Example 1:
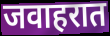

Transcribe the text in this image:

जवाहरात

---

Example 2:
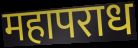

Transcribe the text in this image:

महापराध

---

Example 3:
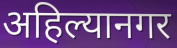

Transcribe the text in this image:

अहिल्यानगर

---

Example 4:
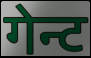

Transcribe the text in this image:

गेन्ट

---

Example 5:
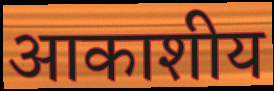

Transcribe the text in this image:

आकाशीय